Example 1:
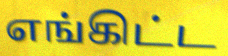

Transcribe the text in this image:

எங்கிட்ட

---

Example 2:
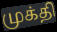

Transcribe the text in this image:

முக்தி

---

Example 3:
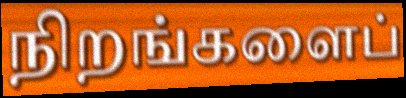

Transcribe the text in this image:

நிறங்களைப்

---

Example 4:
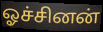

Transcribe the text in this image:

ஓச்சினன்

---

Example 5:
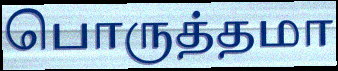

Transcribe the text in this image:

பொருத்தமா